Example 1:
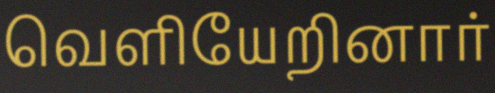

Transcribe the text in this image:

வெளியேறினார்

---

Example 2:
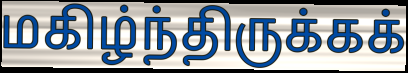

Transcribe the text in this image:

மகிழ்ந்திருக்கக்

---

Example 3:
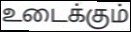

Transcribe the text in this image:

உடைக்கும்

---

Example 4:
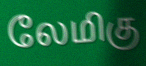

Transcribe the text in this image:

லேமிகு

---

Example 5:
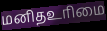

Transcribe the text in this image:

மனிதஉரிமை